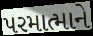
પરમાત્માને